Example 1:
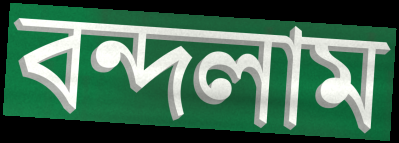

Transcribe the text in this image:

বন্দলাম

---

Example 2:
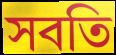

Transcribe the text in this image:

সবতি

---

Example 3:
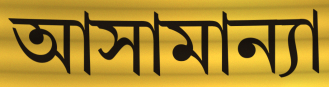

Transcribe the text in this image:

আসামান্যা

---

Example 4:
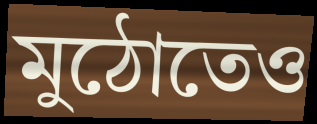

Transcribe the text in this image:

মুঠোতেও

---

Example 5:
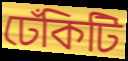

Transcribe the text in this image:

ঢেঁকিটি